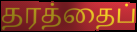
தரத்தைப்